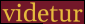
videtur